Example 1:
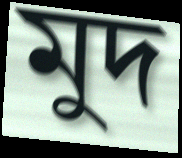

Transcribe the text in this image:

মুদ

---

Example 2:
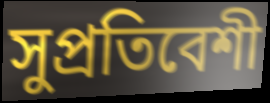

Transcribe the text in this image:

সুপ্রতিবেশী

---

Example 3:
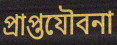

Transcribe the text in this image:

প্রাপ্তযৌবনা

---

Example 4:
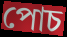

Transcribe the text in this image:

পোচ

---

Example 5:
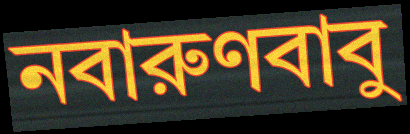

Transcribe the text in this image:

নবারুণবাবু